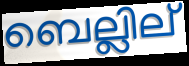
ബെല്ലില്